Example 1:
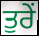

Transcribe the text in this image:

ਤੁਰੇਂ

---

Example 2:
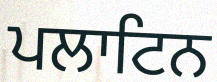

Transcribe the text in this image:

ਪਲਾਟਿਨ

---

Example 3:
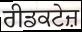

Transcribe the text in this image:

ਰੀਡਕਟੇਜ਼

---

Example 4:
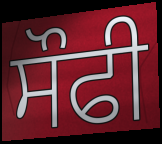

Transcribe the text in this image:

ਸੌਫੀ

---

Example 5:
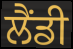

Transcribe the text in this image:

ਲੈਂਡੀ